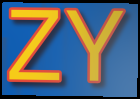
ZY